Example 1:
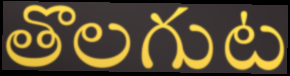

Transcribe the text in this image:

తొలగుట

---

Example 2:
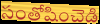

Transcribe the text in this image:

సంతోషించెడి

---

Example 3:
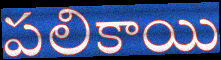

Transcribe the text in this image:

పలికాయి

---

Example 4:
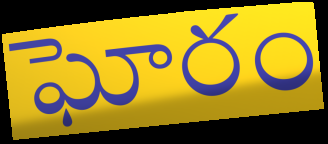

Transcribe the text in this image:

ఘోరం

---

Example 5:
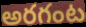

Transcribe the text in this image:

అరగంట